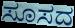
ಸೂಸದ